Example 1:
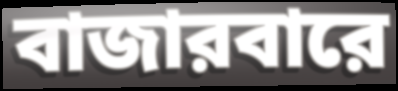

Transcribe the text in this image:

বাজারবারে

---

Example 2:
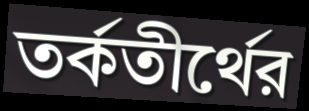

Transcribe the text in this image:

তর্কতীর্থের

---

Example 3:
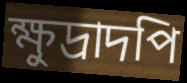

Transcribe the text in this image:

ক্ষুদ্রাদপি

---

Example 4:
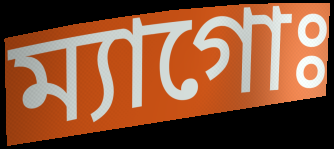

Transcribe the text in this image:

ম্যাগোঃ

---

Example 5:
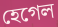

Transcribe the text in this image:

হেগেল